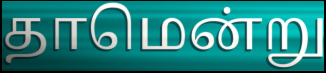
தாமென்று